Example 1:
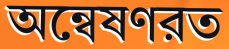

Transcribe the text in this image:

অন্বেষণরত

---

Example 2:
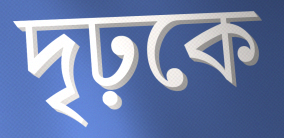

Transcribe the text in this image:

দৃঢ়কে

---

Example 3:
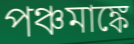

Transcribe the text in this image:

পঞ্চমাঙ্কে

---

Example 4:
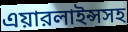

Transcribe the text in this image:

এয়ারলাইন্সসহ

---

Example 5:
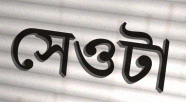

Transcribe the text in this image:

সেওটা